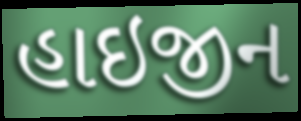
હાઇજીન